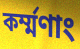
কর্ম্মণাং